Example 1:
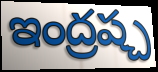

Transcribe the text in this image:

ఇంద్రష్చ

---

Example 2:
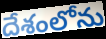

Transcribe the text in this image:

దేశంలోను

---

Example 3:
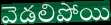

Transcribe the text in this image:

వెడలిపోయి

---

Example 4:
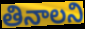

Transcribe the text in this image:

తినాలని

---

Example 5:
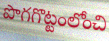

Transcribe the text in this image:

పొగగొట్టంలోంచి